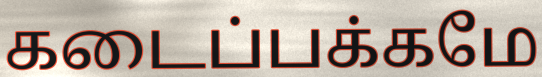
கடைப்பக்கமே